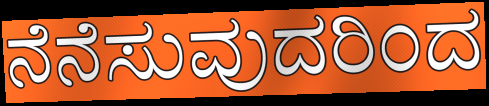
ನೆನೆಸುವುದರಿಂದ